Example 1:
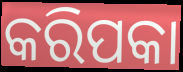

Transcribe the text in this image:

କରିପକା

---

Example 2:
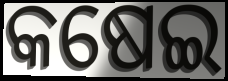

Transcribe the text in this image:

କଷେଇ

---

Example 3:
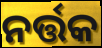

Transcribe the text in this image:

ନର୍ତ୍ତକ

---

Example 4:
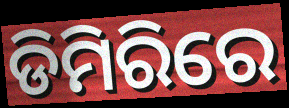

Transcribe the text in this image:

ଡିମିରିରେ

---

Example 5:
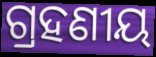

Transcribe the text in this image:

ଗ୍ରହଣୀୟ